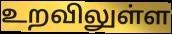
உறவிலுள்ள